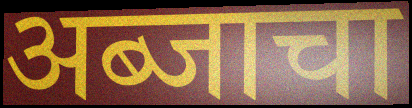
अब्जाचा